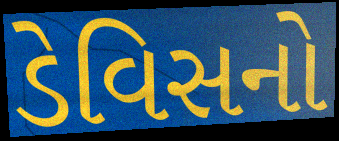
ડેવિસનો